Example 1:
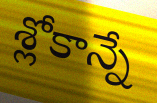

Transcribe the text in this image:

శ్లోకాన్నే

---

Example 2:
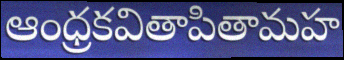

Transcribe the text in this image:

ఆంధ్రకవితాపితామహ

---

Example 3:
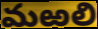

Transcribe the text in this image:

మఱలి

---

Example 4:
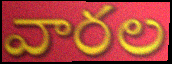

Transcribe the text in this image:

వారల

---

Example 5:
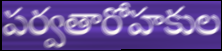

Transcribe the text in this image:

పర్వతారోహకుల